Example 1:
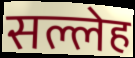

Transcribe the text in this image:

सल्लेह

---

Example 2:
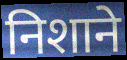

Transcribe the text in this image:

निशाने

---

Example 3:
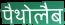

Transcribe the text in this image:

पैथोलैब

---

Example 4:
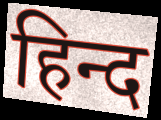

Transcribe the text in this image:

हिन्द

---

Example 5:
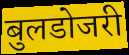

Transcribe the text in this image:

बुलडोजरी